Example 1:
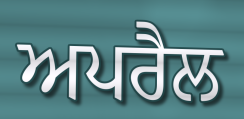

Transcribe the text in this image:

ਅਪਰੈਲ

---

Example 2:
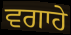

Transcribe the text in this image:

ਵਗਾਹੇ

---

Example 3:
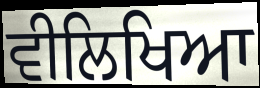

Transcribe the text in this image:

ਵੀਲਿਖਿਆ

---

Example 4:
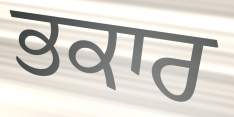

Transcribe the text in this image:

ਭਕਾਰ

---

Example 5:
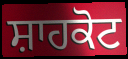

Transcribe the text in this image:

ਸ਼ਾਹਕੋਟ